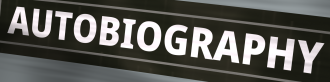
AUTOBIOGRAPHY